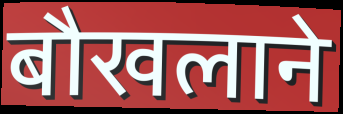
बौखलाने